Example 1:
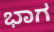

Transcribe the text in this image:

ಭಾಗ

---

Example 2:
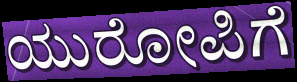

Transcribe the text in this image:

ಯುರೋಪಿಗೆ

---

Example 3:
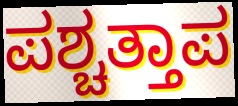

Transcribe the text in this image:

ಪಶ್ಚತ್ತಾಪ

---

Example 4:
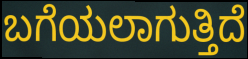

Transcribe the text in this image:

ಬಗೆಯಲಾಗುತ್ತಿದೆ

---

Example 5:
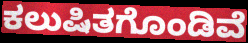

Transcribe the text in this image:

ಕಲುಷಿತಗೊಂಡಿವೆ